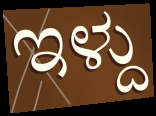
ಇಳ್ದು